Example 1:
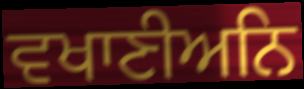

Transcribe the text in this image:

ਵਖਾਣੀਅਨਿ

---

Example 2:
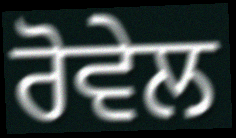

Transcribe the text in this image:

ਰੋਵੇਲ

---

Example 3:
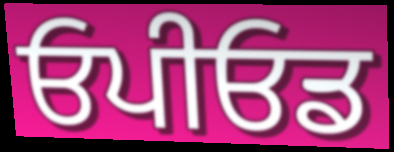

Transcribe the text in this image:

ਓਪੀਓਡ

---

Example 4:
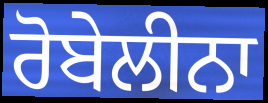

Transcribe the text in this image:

ਰੋਬੇਲੀਨਾ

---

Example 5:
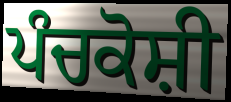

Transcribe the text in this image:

ਪੰਚਕੋਸ਼ੀ